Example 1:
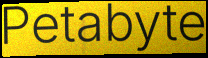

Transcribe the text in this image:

Petabyte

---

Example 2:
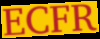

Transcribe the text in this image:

ECFR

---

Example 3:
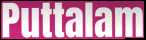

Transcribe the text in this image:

Puttalam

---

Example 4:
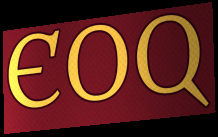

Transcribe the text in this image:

EOQ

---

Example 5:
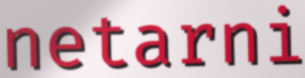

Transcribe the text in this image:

netarni